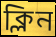
ক্লিন